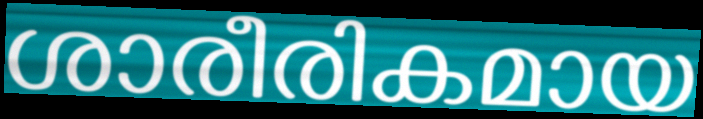
ശാരീരികമായ